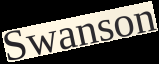
Swanson